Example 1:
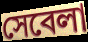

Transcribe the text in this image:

সেবেলা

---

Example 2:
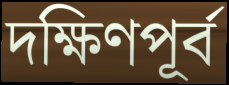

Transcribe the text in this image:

দক্ষিণপূর্ব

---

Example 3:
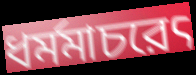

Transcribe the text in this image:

ধর্মমাচরেৎ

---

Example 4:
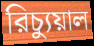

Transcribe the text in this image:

রিচ্যুয়াল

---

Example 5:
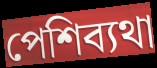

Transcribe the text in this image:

পেশিব্যথা